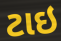
ટાઇ